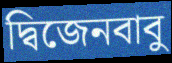
দ্বিজেনবাবু